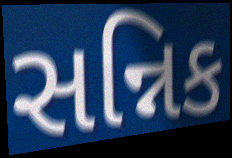
સન્નિક